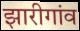
झारीगांव